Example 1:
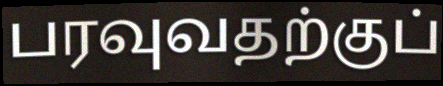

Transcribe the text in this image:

பரவுவதற்குப்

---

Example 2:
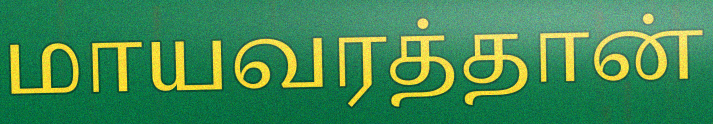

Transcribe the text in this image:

மாயவரத்தான்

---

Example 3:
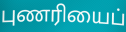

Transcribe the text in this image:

புணரியைப்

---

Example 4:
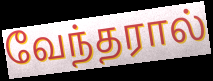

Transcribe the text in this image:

வேந்தரால்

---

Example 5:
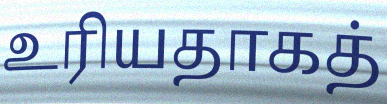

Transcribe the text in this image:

உரியதாகத்